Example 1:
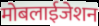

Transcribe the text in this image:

मोबलाईजेशन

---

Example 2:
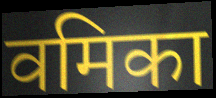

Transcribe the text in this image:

वमिका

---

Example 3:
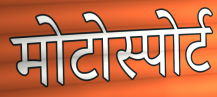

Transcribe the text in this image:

मोटोस्पोर्ट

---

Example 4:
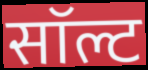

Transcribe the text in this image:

सॉल्ट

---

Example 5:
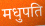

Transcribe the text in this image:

मधुपति